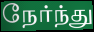
நேர்ந்து